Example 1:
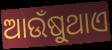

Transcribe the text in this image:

ଆଉଁଷୁଥାଏ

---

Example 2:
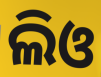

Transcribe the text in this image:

ଲିଓ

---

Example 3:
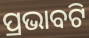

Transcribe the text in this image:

ପ୍ରଭାବଟି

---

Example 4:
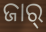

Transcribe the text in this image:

ଜାର୍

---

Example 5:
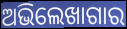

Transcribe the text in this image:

ଅଭିଲେଖାଗାର